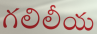
గలిలీయ